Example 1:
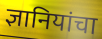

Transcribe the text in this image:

ज्ञानियांचा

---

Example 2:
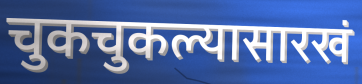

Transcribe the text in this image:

चुकचुकल्यासारखं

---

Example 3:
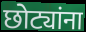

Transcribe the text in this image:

छोट्यांना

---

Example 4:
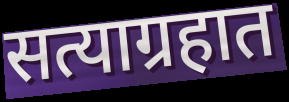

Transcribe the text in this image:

सत्याग्रहात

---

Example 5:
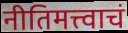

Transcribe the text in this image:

नीतिमत्त्वाचं